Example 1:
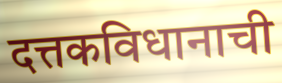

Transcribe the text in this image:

दत्तकविधानाची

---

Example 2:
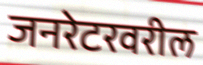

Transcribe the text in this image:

जनरेटरवरील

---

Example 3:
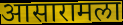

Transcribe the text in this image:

आसारामला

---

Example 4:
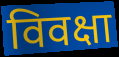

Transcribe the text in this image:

विवक्षा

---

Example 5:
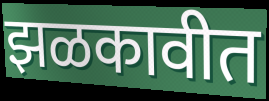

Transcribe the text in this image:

झळकावीत